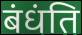
बंधंति